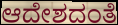
ಆದೇಶದಂತೆ